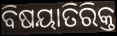
ବିଷୟାତିରିକ୍ତ